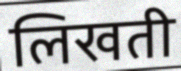
लिखती